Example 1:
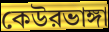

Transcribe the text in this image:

কেউরভাঙ্গা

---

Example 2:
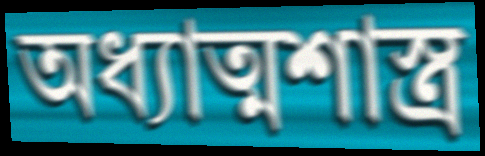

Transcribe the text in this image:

অধ্যাত্মশাস্ত্র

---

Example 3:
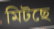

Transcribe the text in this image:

মিটছে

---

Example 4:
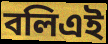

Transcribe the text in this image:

বলিএই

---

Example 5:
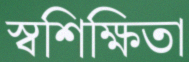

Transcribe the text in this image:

স্বশিক্ষিতা